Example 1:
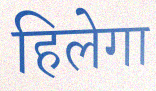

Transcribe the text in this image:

हिलेगा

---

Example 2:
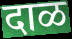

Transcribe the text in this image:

दाळ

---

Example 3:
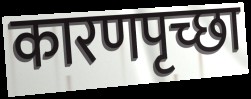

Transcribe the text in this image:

कारणपृच्छा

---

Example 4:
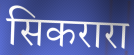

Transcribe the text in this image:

सिकरारा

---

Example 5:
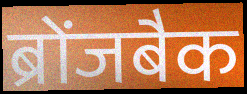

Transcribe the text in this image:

ब्रोंजबैक